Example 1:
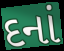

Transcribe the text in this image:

દનાં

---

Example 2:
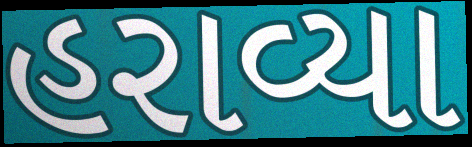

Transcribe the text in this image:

હરાવ્યા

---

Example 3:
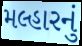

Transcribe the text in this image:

મલ્હારનું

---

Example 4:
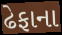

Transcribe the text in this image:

ઢેફાના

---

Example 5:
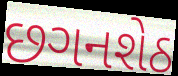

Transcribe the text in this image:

છગનશેઠ